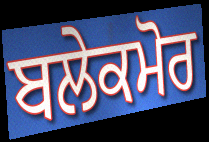
ਬਲੇਕਮੋਰ